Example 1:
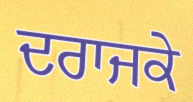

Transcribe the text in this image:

ਦਰਾਜਕੇ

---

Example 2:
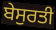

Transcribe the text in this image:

ਬੇਸੁਰਤੀ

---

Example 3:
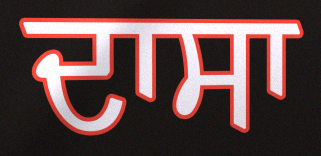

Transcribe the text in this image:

ਦਾਸਾ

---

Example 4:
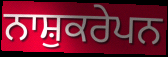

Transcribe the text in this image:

ਨਾਸ਼ੁਕਰੇਪਨ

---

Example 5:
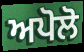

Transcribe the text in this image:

ਅਪੋਲੋ